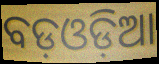
ବଡ଼ଓଡ଼ିଆ